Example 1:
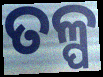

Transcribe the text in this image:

ତଳ୍ପ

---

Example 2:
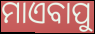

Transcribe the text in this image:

ମାଏବାପୁ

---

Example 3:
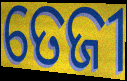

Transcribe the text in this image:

ତେଜୀ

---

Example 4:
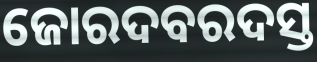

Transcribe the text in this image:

ଜୋରଦବରଦସ୍ତ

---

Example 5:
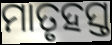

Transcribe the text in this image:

ମାତୃହସ୍ତ